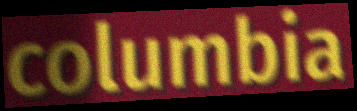
columbia